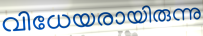
വിധേയരായിരുന്നു